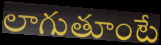
లాగుతూంటే